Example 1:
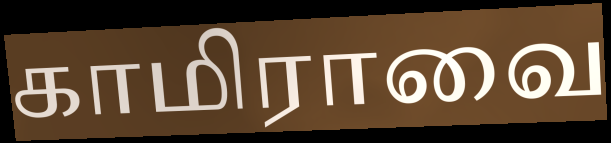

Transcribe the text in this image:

காமிராவை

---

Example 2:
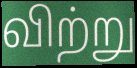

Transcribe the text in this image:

விற்று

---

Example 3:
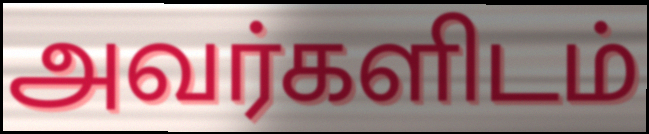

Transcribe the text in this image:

அவர்களிடம்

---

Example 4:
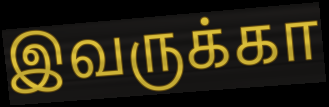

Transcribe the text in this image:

இவருக்கா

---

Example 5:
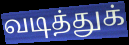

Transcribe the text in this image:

வடித்துக்